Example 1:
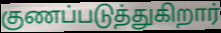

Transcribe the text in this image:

குணப்படுத்துகிறார்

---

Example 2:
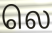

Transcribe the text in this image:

லெ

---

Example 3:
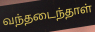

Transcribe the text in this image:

வந்தடைந்தாள்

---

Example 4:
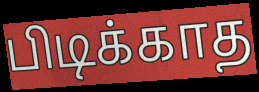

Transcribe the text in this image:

பிடிக்காத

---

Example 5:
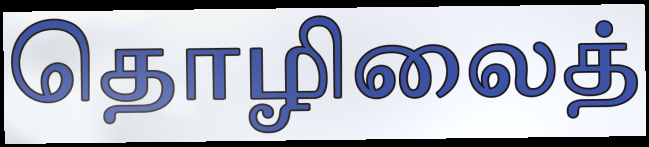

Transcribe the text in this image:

தொழிலைத்